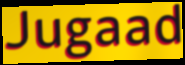
Jugaad